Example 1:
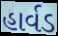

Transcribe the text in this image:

હાર્વડ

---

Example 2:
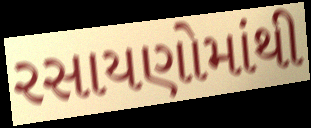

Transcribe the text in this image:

રસાયણોમાંથી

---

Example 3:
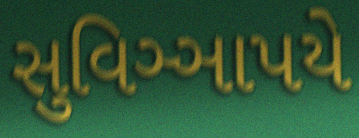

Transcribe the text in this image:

સુવિઞ્ઞાપયે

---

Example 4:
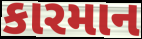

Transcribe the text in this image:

કારમાન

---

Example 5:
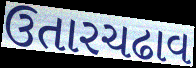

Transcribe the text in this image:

ઉતારચઢાવ